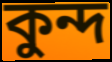
কুন্দ